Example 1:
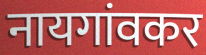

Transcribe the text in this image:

नायगांवकर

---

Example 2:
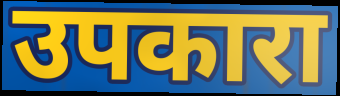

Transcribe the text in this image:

उपकारा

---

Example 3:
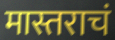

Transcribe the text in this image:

मास्तराचं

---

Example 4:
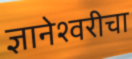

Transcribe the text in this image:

ज्ञानेश्वरीचा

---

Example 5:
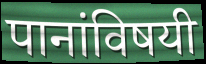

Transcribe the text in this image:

पानांविषयी